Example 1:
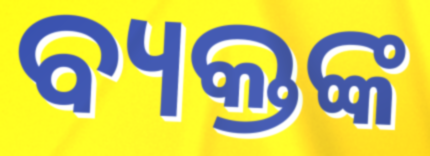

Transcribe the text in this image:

ବ୍ୟକ୍ତଙ୍କ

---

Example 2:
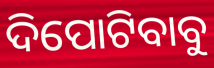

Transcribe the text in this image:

ଦିପୋଟିବାବୁ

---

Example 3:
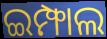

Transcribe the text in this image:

ଇମ୍ଫାଲ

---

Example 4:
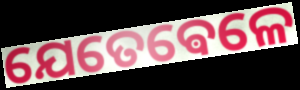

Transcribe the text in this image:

ଯେତେଵେଳେ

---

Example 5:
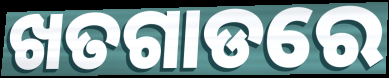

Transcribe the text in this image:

ଖତଗାଡରେ